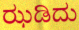
ಝಡಿದು